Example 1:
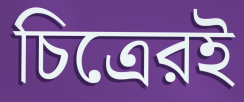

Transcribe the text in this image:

চিত্রেরই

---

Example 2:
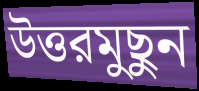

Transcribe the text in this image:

উত্তরমুছুন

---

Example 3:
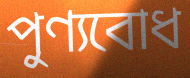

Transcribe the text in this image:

পুণ্যবোধ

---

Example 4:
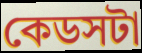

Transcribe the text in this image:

কেডসটা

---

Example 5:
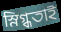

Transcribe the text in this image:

স্নিগ্ধতাই